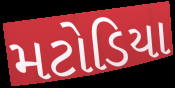
મટોડિયા